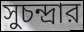
সুচন্দ্রার